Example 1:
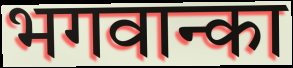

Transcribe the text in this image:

भगवान्का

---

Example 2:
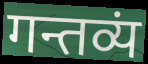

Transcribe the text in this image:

गन्तव्यं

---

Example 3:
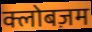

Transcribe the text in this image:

क्लोबज़म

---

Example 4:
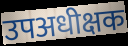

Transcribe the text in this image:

उपअधीक्षक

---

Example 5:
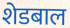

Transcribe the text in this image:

शेडबाल